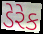
ડેરેક